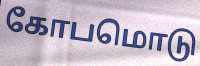
கோபமொடு